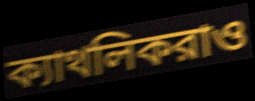
ক্যাথলিকরাও